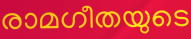
രാമഗീതയുടെ